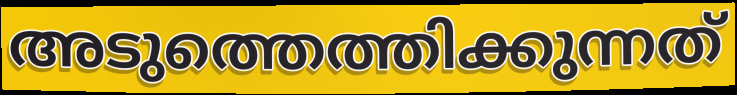
അടുത്തെത്തിക്കുന്നത്